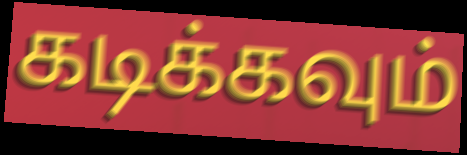
கடிக்கவும்